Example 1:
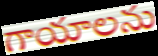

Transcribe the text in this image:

గాయాలను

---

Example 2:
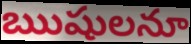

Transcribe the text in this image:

ఋషులనూ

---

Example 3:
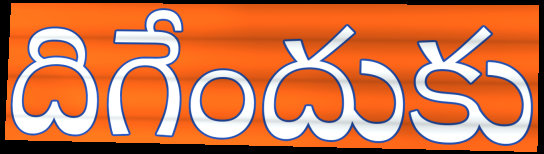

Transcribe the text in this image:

దిగేందుకు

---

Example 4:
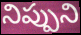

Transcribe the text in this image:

నిప్పుని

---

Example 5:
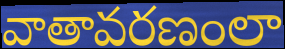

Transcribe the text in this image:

వాతావరణంలా